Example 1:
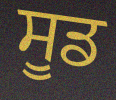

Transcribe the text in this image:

ਸੂਡ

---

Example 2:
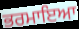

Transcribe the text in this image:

ਭਰਮਾਇਆ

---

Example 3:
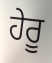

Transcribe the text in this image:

ਹੇਰੂ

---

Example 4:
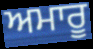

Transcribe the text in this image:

ਅਮਾਰੂ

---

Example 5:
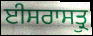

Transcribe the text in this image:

ਈਸਰਾਸਤ੍ਰੁ